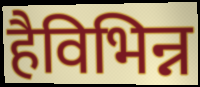
हैविभिन्न